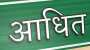
आधित